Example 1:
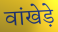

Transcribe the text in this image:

वांखेड़े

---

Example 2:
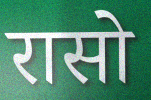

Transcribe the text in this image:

रासो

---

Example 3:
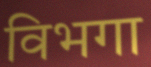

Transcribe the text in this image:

विभगा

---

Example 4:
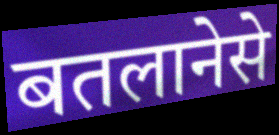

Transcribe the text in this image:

बतलानेसे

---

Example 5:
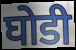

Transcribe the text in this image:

घोडी